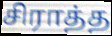
சிராத்த